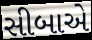
સીબાએ